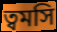
ত্বমসি